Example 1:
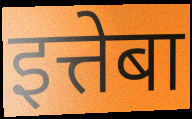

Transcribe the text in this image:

इत्तेबा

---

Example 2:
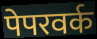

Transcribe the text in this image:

पेपरवर्क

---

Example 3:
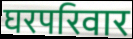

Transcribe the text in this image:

घरपरिवार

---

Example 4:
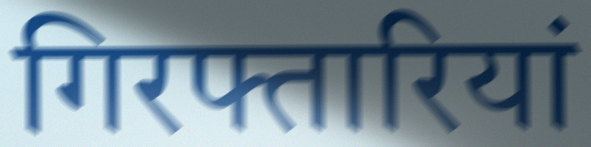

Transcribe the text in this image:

गिरफ्तारियां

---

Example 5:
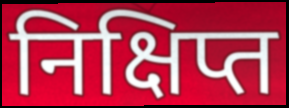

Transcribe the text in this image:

निक्षिप्त